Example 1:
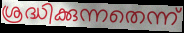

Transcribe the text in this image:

ശ്രദ്ധിക്കുന്നതെന്ന്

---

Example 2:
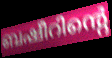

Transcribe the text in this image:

ബഷീറിന്റെ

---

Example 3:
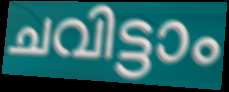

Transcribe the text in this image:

ചവിട്ടാം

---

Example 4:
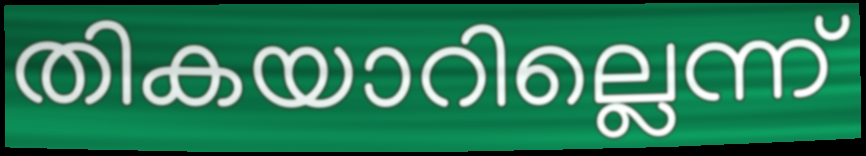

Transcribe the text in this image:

തികയാറില്ലെന്ന്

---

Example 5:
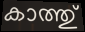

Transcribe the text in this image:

കാത്തു്